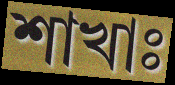
শাখাঃ